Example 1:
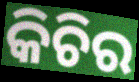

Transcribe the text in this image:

କିଚିର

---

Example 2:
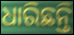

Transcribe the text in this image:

ଧାରିଛନ୍ତି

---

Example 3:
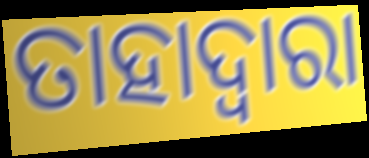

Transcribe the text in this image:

ତାହାଦ୍ୱାରା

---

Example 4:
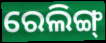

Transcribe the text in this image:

ରେଲିଙ୍ଗ୍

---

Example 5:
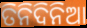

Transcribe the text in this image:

ତିନିଦିନିଆ